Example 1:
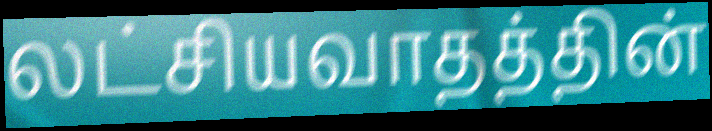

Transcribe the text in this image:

லட்சியவாதத்தின்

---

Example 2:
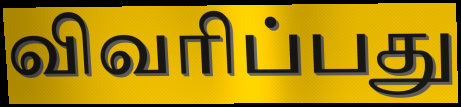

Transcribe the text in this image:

விவரிப்பது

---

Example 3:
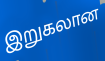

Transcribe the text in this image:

இறுகலான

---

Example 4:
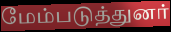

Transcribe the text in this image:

மேம்படுத்துனர்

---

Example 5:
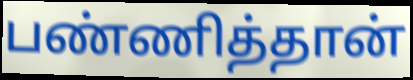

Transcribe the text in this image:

பண்ணித்தான்